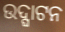
ଉଦ୍ଘାଟନ